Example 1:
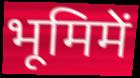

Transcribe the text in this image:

भूमिमें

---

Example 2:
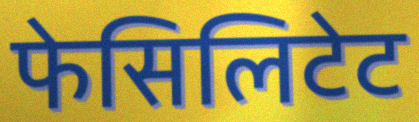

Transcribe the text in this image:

फेसिलिटेट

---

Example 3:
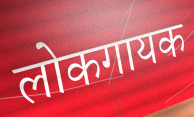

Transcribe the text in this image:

लोकगायक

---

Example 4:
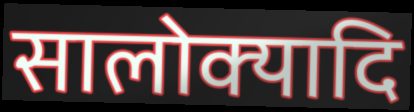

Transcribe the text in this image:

सालोक्यादि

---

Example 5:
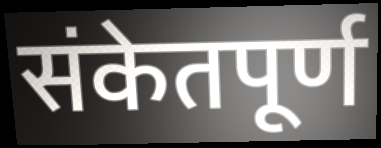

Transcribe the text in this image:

संकेतपूर्ण